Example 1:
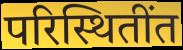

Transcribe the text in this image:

परिस्थितींत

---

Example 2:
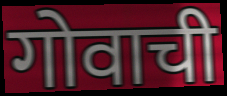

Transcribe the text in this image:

गोवाची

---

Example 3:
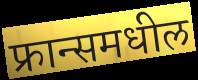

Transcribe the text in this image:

फ्रान्समधील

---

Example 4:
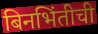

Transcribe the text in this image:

बिनभिंतीची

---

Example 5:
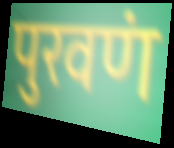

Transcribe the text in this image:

पुरवणं